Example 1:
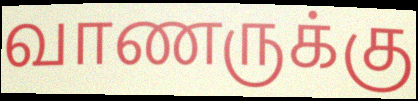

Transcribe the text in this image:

வாணருக்கு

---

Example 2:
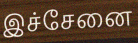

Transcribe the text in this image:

இச்சேனை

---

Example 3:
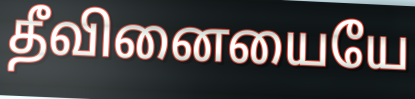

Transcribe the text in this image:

தீவினையையே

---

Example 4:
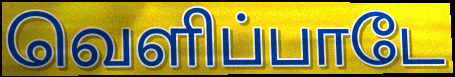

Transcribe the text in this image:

வெளிப்பாடே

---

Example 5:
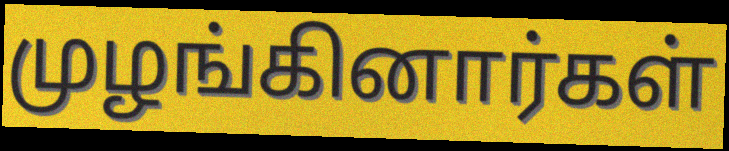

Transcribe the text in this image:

முழங்கினார்கள்